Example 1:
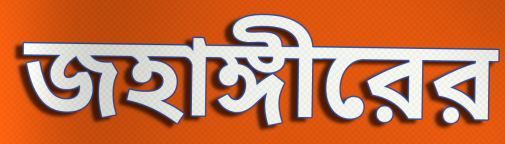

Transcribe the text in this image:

জহাঙ্গীরের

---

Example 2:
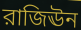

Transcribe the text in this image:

রাজিঊন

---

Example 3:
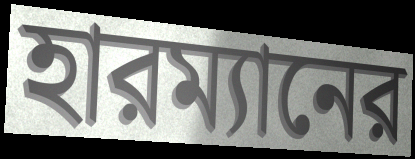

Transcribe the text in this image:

হারম্যানের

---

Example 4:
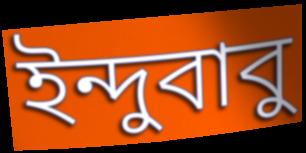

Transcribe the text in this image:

ইন্দুবাবু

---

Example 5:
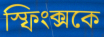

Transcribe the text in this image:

স্ফিংক্সকে